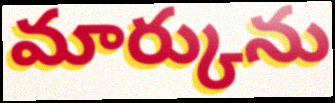
మార్కును